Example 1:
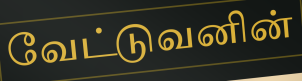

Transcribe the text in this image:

வேட்டுவனின்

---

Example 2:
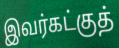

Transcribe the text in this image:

இவர்கட்குத்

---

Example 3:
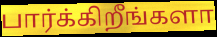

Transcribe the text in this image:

பார்க்கிறீங்களா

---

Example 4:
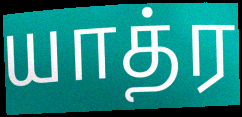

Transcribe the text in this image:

யாத்ர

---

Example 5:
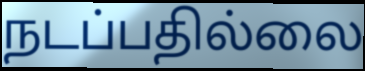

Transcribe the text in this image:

நடப்பதில்லை